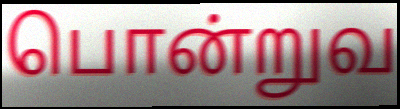
பொன்றுவ